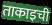
ताकाइची